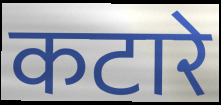
कटारे